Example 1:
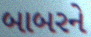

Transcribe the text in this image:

બાબરને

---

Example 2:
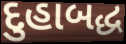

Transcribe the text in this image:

દુહાબદ્ધ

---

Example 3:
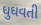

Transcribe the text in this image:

ઘુઘવતી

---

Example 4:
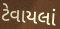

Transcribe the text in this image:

ટેવાયલાં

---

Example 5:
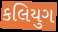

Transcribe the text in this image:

કલિયુગ